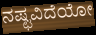
ನಷ್ಟವಿದೆಯೋ